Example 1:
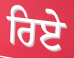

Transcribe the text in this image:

ਰਿਏ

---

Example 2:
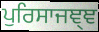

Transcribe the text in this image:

ਪੁਰਿਸਾਜਞ੍ਞ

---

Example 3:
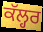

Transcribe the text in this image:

ਕੱਲ੍ਹਰ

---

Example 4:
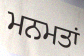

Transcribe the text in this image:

ਮਨਮਤਾਂ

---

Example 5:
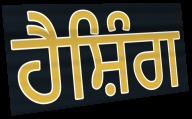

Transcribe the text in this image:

ਹੈਸ਼ਿੰਗ